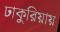
ঢাকুরিয়ায়